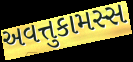
અવત્તુકામસ્સ